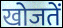
खोजतें